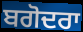
ਬਗੋਦਰਾ